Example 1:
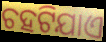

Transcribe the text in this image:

ଚହଟିଯାଏ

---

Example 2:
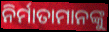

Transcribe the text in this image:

ନିର୍ମାତାମାନଙ୍କୁ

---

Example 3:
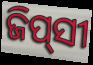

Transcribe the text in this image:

ଜିପ୍‍ସୀ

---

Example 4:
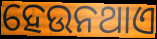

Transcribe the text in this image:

ହେଉନଥାଏ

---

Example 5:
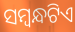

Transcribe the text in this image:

ସମ୍ବନ୍ଧଟିଏ